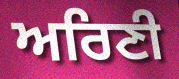
ਅਰਿਣੀ